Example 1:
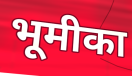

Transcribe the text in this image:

भूमीका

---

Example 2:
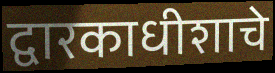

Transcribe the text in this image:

द्वारकाधीशाचे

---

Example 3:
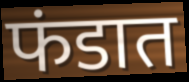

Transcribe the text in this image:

फंडात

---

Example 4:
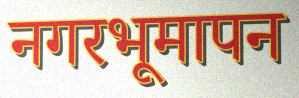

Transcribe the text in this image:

नगरभूमापन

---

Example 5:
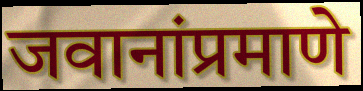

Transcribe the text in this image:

जवानांप्रमाणे